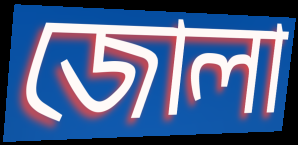
জোলা